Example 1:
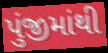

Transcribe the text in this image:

પુંજીમાંથી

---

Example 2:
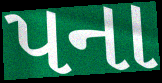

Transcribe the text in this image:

પના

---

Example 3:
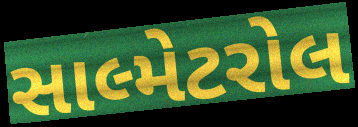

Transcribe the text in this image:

સાલ્મેટરોલ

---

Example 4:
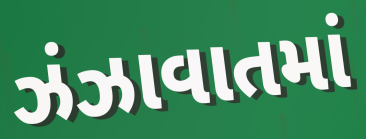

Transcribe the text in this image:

ઝંઝાવાતમાં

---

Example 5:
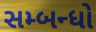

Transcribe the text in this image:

સમ્બન્ધો